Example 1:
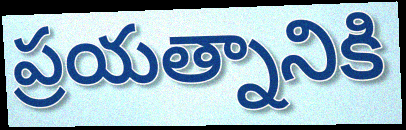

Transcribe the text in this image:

ప్రయత్నానికి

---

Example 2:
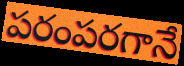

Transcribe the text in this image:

పరంపరగానే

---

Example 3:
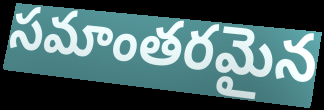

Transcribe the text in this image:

సమాంతరమైన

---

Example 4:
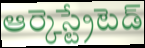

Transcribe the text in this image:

ఆర్కెస్ట్రేటెడ్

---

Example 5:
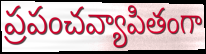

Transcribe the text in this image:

ప్రపంచవ్యాపితంగా